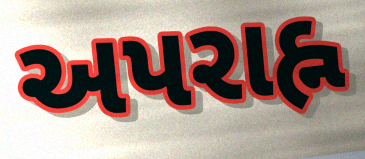
અપરાહ્ન